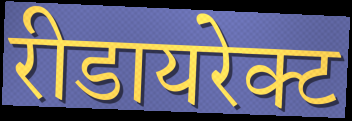
रीडायरेक्ट